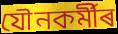
যৌনকৰ্মীৰ